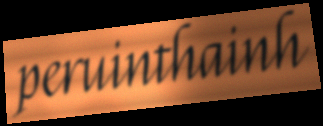
peruinthainh